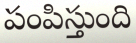
పంపిస్తుంది